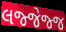
લજ્જેજ્જ